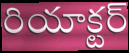
రియాక్టర్